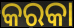
କରକା